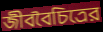
জীববৈচিত্রের